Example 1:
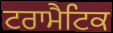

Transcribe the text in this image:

ਟਰਾਮੈਟਿਕ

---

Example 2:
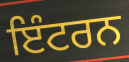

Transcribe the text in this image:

ਇੰਟਰਨ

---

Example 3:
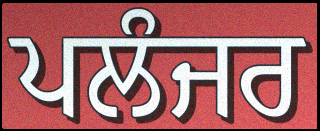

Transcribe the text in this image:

ਪਲੰਜਰ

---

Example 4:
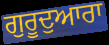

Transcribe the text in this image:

ਗੁਰੂਦੁਆਰਾ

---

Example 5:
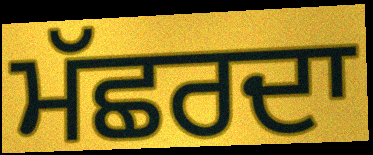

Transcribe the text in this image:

ਮੱਛਰਦਾ